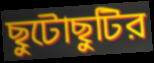
ছুটোছুটির